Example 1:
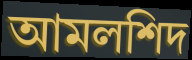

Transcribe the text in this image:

আমলশিদ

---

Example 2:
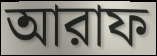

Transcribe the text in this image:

আরাফ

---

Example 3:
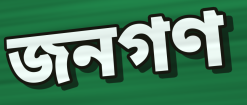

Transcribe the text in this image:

জনগণ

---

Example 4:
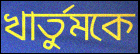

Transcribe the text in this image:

খার্তুমকে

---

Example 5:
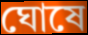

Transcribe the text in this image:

ঘোষে